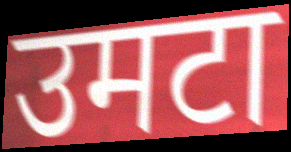
उमटा